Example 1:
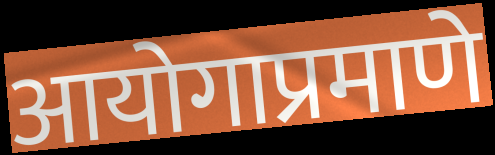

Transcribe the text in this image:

आयोगाप्रमाणे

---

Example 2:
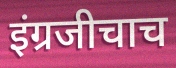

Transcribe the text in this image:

इंग्रजीचाच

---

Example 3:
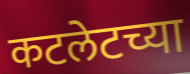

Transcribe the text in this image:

कटलेटच्या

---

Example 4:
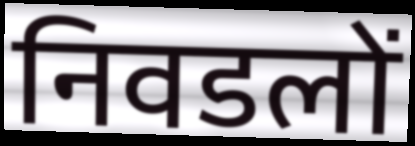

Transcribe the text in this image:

निवडलों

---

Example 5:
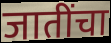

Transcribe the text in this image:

जातींचा